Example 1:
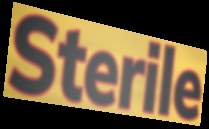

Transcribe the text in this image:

Sterile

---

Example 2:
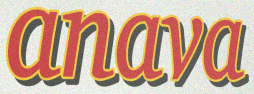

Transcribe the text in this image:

anava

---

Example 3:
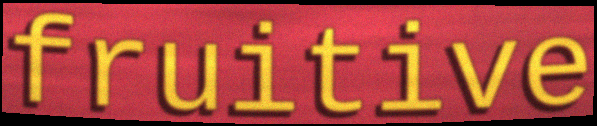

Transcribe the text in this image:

fruitive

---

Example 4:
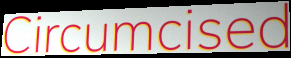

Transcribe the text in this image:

Circumcised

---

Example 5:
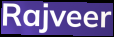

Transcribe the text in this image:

Rajveer